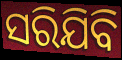
ସରିଯିବି